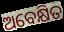
ଅବେକ୍ଷିତ